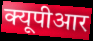
क्यूपीआर